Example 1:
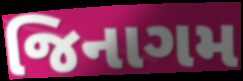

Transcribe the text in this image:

જિનાગમ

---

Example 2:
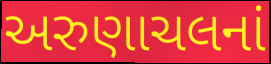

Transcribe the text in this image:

અરુણાચલનાં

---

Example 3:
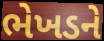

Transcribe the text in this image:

ભેખડને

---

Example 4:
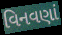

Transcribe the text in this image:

વિનવણાં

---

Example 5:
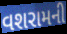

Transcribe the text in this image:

વશરામની